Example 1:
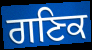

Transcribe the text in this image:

ਗਣਿਕ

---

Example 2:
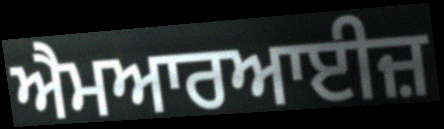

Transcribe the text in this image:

ਐਮਆਰਆਈਜ਼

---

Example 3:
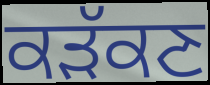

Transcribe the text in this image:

ਕੜੱਕਣ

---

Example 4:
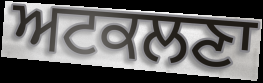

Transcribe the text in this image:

ਅਟਕਲਣਾ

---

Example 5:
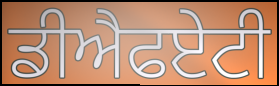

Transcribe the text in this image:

ਡੀਐਫਏਟੀ